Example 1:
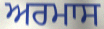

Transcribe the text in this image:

ਅਰਮਾਸ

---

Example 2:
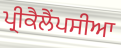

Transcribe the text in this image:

ਪ੍ਰੀਕੈਲੈਂਪਸੀਆ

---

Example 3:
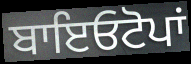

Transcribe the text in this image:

ਬਾਇਓਟੋਪਾਂ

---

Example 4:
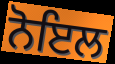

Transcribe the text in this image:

ਨੋਇਲ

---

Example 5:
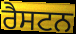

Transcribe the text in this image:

ਰੈਸਟਨ